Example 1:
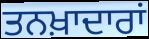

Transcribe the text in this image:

ਤਨਖ਼ਾਦਾਰਾਂ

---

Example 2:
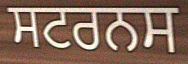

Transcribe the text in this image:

ਸਟਰਨਸ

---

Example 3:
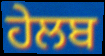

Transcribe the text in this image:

ਹੇਲਬ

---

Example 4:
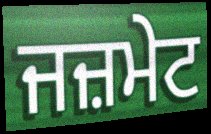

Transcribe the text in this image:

ਜਜ਼ਮੇਟ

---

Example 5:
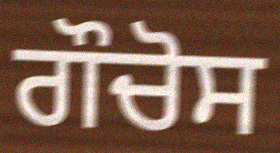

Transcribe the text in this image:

ਗੌਚੋਸ